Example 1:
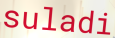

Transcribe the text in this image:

suladi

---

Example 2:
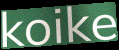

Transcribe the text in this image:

koike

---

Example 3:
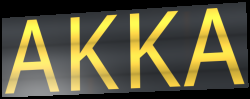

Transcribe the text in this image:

AKKA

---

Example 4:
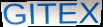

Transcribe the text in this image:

GITEX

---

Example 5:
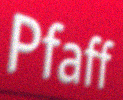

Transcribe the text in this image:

Pfaff